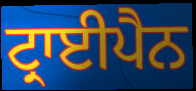
ਟ੍ਰਾਈਪੈਨ